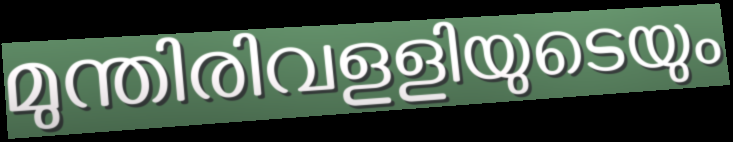
മുന്തിരിവളളിയുടെയും